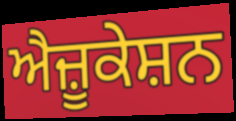
ਐਜ਼ੂਕੇਸ਼ਨ